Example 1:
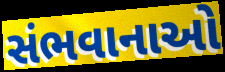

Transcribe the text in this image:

સંભવાનાઓ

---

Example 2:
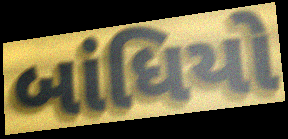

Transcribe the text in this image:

બાંધિયો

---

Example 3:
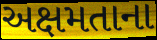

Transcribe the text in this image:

અક્ષમતાના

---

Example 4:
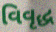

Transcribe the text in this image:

વિવૃદ્ધ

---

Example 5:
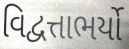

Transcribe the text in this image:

વિદ્વત્તાભર્યો